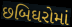
છબિઘરોમાં